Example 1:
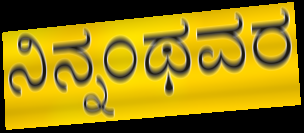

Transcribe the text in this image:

ನಿನ್ನಂಥವರ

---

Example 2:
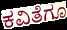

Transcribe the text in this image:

ಕವಿತೆಗೂ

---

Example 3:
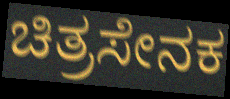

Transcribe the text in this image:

ಚಿತ್ರಸೇನಕ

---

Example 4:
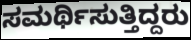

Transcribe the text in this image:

ಸಮರ್ಥಿಸುತ್ತಿದ್ದರು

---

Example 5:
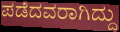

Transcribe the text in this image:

ಪಡೆದವರಾಗಿದ್ದು